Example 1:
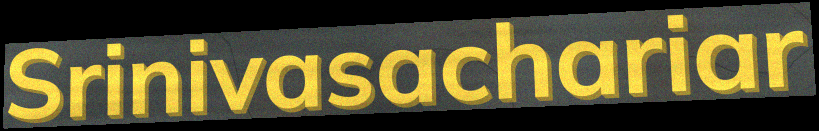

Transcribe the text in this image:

Srinivasachariar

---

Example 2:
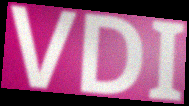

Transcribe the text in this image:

VDI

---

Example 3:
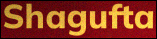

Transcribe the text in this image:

Shagufta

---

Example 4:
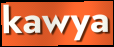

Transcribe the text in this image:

kawya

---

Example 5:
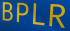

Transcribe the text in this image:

BPLR